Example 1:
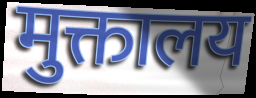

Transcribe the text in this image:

मुक्तालय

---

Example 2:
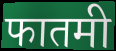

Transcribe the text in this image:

फातमी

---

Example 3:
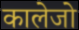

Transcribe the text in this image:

कालेजो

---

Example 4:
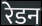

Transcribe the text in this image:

रेडन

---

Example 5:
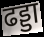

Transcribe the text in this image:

ढड्डा